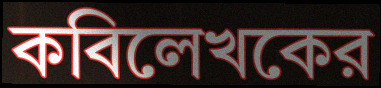
কবিলেখকের